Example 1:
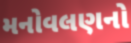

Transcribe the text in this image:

મનોવલણનો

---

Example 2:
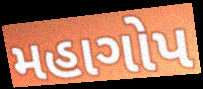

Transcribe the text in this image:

મહાગોપ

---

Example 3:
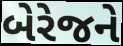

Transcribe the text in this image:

બેરેજને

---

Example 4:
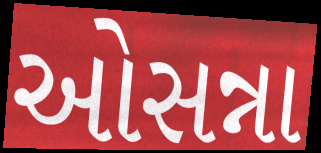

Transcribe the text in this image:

ઓસન્ના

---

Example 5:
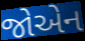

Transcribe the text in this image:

જોએન